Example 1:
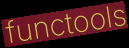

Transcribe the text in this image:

functools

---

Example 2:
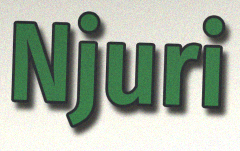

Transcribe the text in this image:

Njuri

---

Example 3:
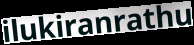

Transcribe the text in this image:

ilukiranrathu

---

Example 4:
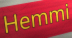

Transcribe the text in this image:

Hemmi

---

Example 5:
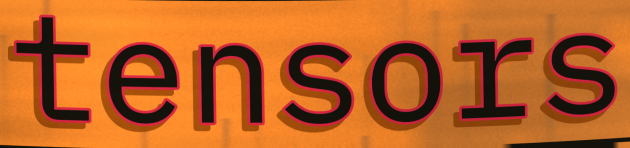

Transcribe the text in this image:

tensors